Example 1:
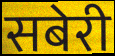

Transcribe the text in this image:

सबेरी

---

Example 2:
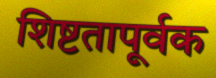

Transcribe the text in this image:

शिष्टतापूर्वक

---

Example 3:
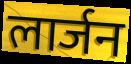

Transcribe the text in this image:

लार्जन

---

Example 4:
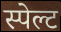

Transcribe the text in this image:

स्पेल्ट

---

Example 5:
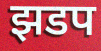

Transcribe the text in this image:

झडप